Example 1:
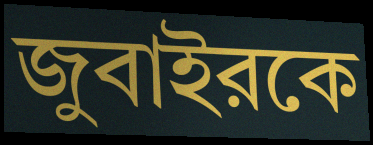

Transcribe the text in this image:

জুবাইরকে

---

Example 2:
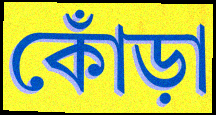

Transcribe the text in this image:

কোঁড়া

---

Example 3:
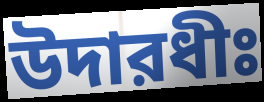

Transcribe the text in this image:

উদারধীঃ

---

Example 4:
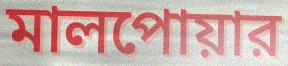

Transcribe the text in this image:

মালপোয়ার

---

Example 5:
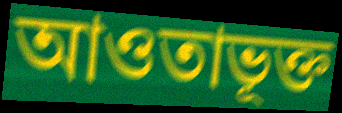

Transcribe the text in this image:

আওতাভূক্ত